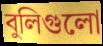
বুলিগুলো